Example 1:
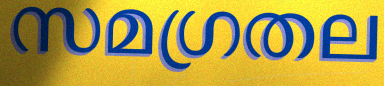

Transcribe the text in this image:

സമഗ്രതല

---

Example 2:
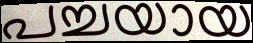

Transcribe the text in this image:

പച്ചയായ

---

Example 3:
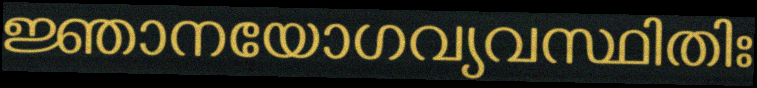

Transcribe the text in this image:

ജ്ഞാനയോഗവ്യവസ്ഥിതിഃ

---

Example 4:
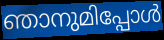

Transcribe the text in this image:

ഞാനുമിപ്പോൾ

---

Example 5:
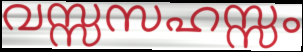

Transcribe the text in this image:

വസ്സസഹസ്സം